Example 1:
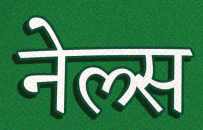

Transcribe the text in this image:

नेल्स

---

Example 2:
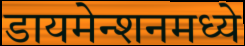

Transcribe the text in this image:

डायमेन्शनमध्ये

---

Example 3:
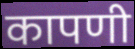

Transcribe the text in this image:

कापणी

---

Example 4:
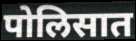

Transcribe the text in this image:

पोलिसात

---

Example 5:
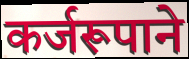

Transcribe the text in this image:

कर्जरूपाने